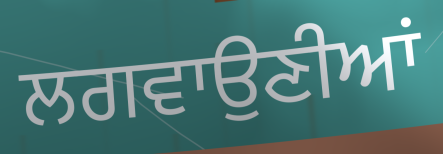
ਲਗਵਾਉਣੀਆਂ